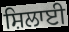
ਸ਼ਿਲਾਈ